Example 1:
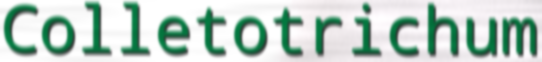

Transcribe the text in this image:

Colletotrichum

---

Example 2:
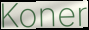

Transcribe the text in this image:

Koner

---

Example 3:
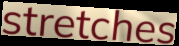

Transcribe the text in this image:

stretches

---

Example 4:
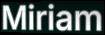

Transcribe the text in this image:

Miriam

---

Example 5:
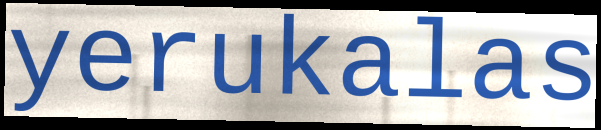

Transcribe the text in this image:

yerukalas